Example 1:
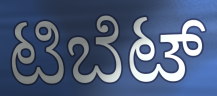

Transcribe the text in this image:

ಟಿಬೆಟ್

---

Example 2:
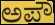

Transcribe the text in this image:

ಅಪೌ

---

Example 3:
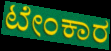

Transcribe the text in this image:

ಟೇಂಕಾರ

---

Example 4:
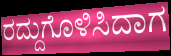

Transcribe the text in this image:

ರದ್ದುಗೊಳಿಸಿದಾಗ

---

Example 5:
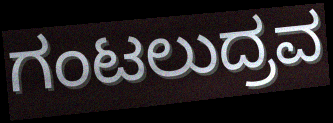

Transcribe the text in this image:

ಗಂಟಲುದ್ರವ